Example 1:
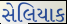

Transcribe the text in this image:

સેલિયાક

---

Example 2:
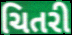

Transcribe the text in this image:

ચિતરી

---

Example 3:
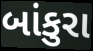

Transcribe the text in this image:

બાંકુરા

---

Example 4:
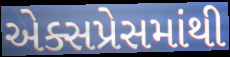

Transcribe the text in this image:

એક્સપ્રેસમાંથી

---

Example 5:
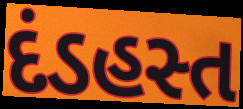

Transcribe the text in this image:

દંડહસ્ત